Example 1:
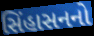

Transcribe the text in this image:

સિંહાસનનો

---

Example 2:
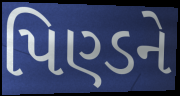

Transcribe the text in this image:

પિણ્ડને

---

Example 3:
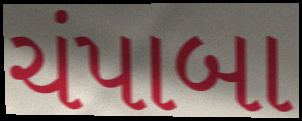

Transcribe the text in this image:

ચંપાબા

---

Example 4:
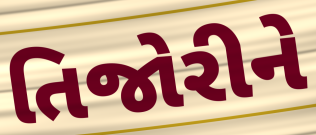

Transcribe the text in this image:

તિજોરીને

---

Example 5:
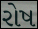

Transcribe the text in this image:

રોષ